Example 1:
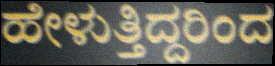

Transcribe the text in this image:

ಹೇಳುತ್ತಿದ್ದರಿಂದ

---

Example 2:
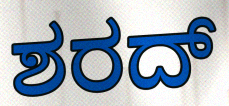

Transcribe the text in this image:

ಶರದ್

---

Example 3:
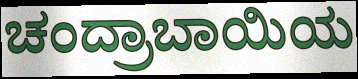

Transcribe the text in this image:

ಚಂದ್ರಾಬಾಯಿಯ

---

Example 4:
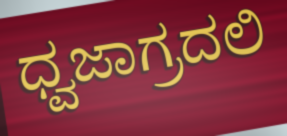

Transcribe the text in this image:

ಧ್ವಜಾಗ್ರದಲಿ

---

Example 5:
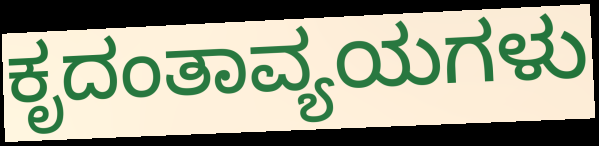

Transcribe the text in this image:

ಕೃದಂತಾವ್ಯಯಗಳು